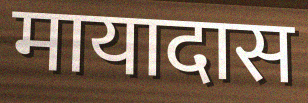
मायादास